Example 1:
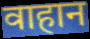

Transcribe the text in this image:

वाहान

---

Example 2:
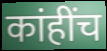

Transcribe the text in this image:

कांहींच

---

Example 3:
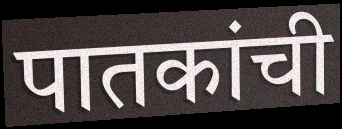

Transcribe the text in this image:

पातकांची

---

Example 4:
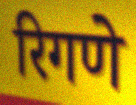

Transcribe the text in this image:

रिगणे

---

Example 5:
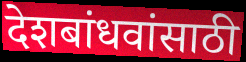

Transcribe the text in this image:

देशबांधवांसाठी